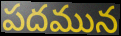
పదమున